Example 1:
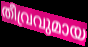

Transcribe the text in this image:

തീവ്രവുമായ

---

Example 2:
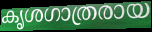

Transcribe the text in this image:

കൃശഗാത്രരായ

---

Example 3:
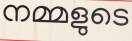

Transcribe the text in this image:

നമ്മളുടെ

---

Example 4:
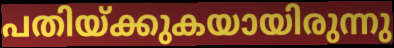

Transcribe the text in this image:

പതിയ്ക്കുകയായിരുന്നു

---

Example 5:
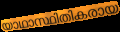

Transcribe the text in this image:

യാഥാസ്ഥിതികരായ